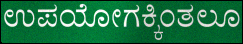
ಉಪಯೋಗಕ್ಕಿಂತಲೂ